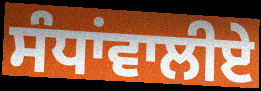
ਸੰਧਾਂਵਾਲੀਏ